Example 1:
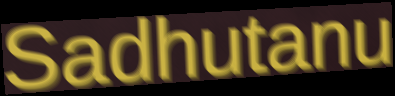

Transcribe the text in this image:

Sadhutanu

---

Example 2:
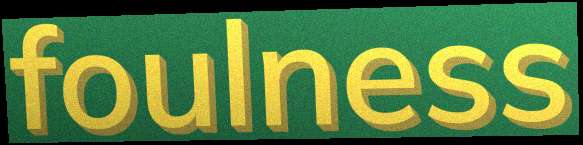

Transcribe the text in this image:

foulness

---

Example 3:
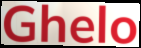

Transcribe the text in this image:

Ghelo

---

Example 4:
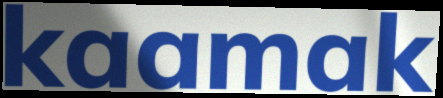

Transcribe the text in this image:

kaamak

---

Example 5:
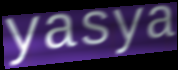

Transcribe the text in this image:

yasya